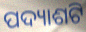
ପଦ୍ୟାଶଟି